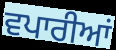
ਵਪਾਰੀਆਂ